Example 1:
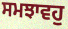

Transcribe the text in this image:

ਸਮਝਾਵਹੁ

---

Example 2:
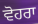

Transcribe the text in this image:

ਵੋਹਰਾ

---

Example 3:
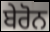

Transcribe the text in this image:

ਬੇਰੋਨ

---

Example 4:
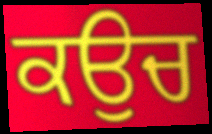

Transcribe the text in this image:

ਕਉਚ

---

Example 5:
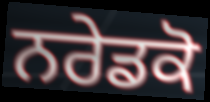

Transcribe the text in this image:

ਨਰੇਡਕੋ